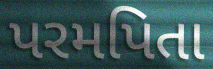
પરમપિતા